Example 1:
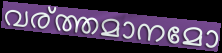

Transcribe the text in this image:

വര്ത്തമാനമോ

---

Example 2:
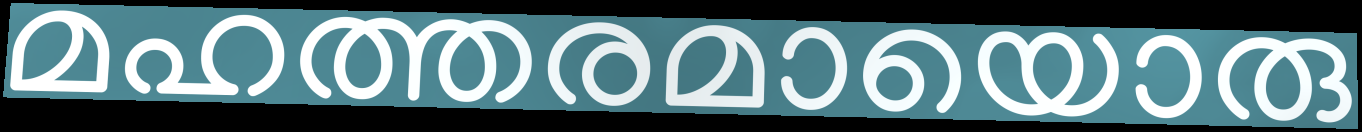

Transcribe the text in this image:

മഹത്തരമായൊരു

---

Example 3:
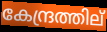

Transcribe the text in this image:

കേന്ദ്രത്തില്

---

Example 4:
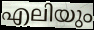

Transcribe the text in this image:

എലിയും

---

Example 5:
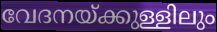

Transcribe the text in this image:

വേദനയ്ക്കുള്ളിലും